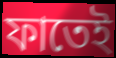
ফাতেই